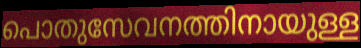
പൊതുസേവനത്തിനായുള്ള